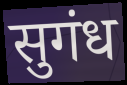
सुगंध